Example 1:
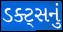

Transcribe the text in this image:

ડક્ટ્સનું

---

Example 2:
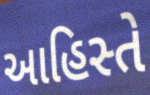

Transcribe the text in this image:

આહિસ્તે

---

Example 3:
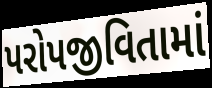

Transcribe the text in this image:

પરોપજીવિતામાં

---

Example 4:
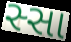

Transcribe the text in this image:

સ્સા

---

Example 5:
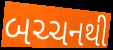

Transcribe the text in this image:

બચ્ચનથી